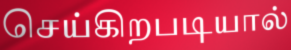
செய்கிறபடியால்